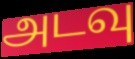
அடவு